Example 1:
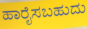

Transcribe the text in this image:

ಹಾರೈಸಬಹುದು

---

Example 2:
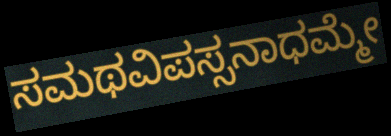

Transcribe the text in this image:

ಸಮಥವಿಪಸ್ಸನಾಧಮ್ಮೇ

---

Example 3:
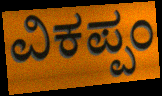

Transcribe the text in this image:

ವಿಕಪ್ಪಂ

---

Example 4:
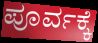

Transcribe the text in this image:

ಪೂರ್ವಕ್ಕೆ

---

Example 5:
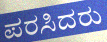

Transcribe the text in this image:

ಪರಸಿದರು